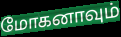
மோகனாவும்